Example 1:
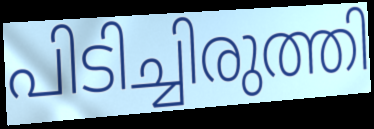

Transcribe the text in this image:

പിടിച്ചിരുത്തി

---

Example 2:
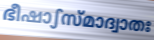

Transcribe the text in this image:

ഭീഷാഽസ്മാദ്വാതഃ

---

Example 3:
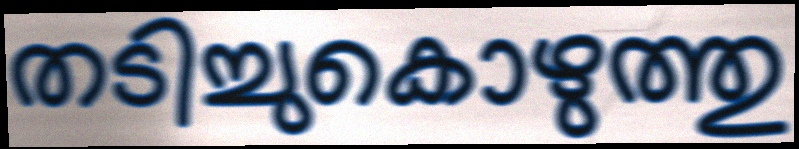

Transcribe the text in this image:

തടിച്ചുകൊഴുത്തു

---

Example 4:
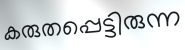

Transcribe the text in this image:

കരുതപ്പെട്ടിരുന്ന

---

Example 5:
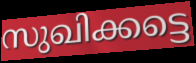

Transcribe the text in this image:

സുഖിക്കട്ടെ